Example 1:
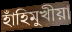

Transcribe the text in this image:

হাঁহিমুখীয়া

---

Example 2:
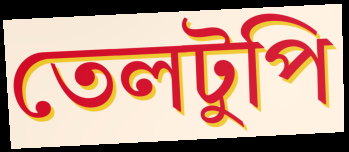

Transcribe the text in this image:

তেলটুপি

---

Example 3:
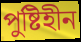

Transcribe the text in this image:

পুষ্টিহীন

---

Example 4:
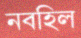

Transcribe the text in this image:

নবহিল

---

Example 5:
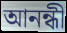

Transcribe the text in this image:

আনন্ধী